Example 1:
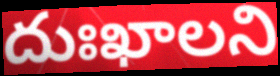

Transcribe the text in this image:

దుఃఖాలని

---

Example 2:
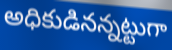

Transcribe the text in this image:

అధికుడినన్నట్టుగా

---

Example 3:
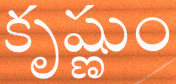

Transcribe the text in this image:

కృష్ణుం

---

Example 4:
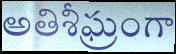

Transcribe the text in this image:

అతిశీఘ్రంగా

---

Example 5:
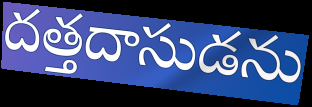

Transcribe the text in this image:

దత్తదాసుడను